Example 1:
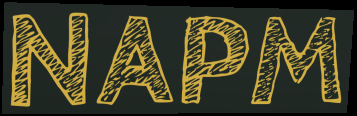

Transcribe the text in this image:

NAPM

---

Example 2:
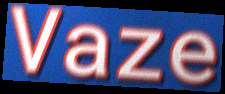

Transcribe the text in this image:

Vaze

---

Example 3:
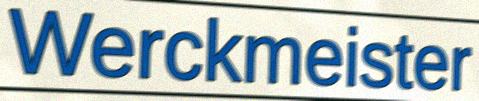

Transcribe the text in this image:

Werckmeister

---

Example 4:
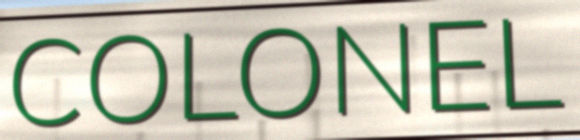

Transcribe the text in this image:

COLONEL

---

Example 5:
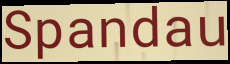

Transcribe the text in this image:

Spandau